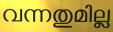
വന്നതുമില്ല